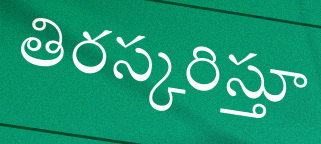
తిరస్కరిస్తూ